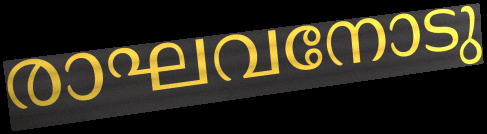
രാഘവനോടു